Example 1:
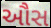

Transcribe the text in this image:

ઔસ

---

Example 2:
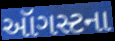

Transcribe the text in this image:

ઑગસ્ટના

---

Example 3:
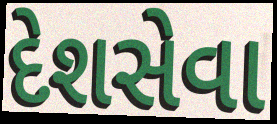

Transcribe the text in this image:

દેશસેવા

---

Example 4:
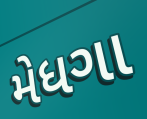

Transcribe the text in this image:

મેધગા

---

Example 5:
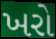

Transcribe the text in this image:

ખરો